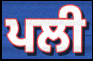
ਪਲੀ